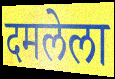
दमलेला